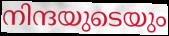
നിന്ദയുടെയും